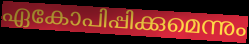
ഏകോപിപ്പിക്കുമെന്നും